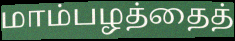
மாம்பழத்தைத்